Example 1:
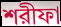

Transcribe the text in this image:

শরীফা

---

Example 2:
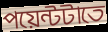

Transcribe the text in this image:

পয়েন্টটাতে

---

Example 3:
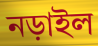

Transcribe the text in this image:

নড়াইল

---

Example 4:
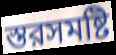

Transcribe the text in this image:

স্তরসমষ্টি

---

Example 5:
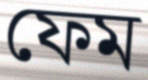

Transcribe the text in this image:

ফেম